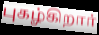
புகழ்கிறார்